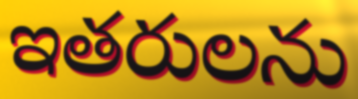
ఇతరులను